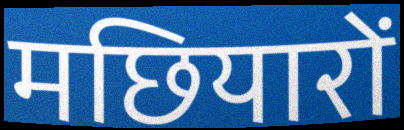
मछियारों